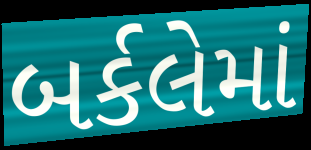
બર્કલેમાં